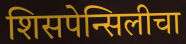
शिसपेन्सिलीचा